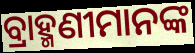
ବ୍ରାହ୍ମଣୀମାନଙ୍କ